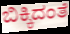
ಬಿಕ್ಕಿದಂತೆ